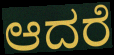
ಆದರೆ